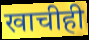
खाचीही